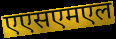
एएसएमएल